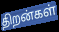
திறன்கள்